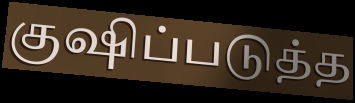
குஷிப்படுத்த